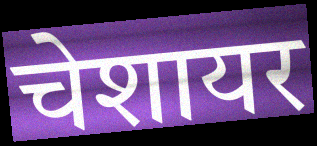
चेशायर